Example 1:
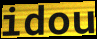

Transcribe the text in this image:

idou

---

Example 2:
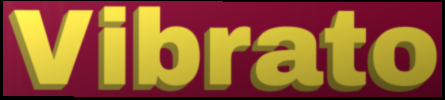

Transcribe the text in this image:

Vibrato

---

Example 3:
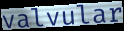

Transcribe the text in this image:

valvular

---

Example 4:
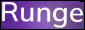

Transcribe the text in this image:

Runge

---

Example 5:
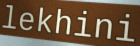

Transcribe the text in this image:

lekhini